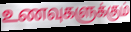
உணவுகளுக்கும்